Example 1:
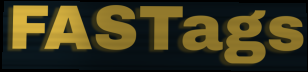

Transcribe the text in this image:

FASTags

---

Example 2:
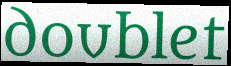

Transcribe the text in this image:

doublet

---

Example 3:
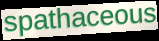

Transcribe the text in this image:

spathaceous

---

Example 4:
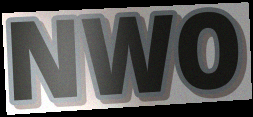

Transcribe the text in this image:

NWO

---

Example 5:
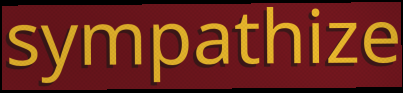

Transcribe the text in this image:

sympathize